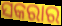
ସକରାର